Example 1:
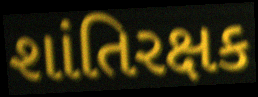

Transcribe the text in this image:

શાંતિરક્ષક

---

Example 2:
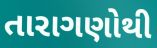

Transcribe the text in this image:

તારાગણોથી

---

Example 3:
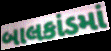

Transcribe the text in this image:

બાલકાંડમાં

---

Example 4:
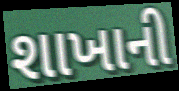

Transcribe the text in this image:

શાખાની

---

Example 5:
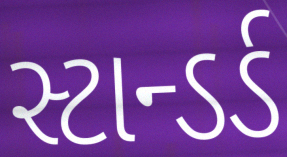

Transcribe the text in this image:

સ્ટાન્ડર્ડ